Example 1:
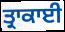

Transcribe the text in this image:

ਤ੍ਰਾਕਾਈ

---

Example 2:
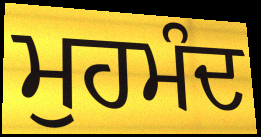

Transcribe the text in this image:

ਮੁਹਮੰਦ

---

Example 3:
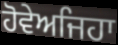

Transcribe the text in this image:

ਹੋਵੇਅਜਿਹਾ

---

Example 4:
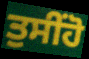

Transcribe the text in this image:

ਤੁਸੀਂਹੋ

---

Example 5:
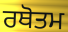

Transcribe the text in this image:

ਰਥੋਤਮ